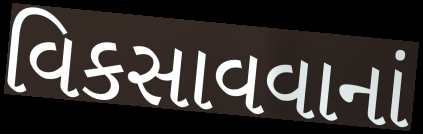
વિકસાવવાનાં